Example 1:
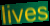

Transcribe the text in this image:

lives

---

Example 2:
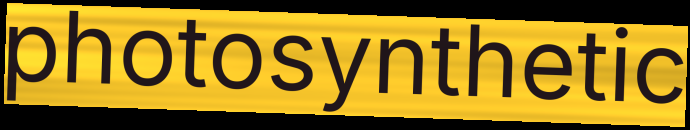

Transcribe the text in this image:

photosynthetic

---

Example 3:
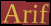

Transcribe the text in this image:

Arif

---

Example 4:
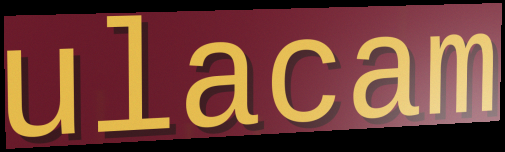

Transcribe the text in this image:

ulacam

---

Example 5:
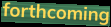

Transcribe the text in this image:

forthcoming